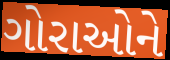
ગોરાઓને